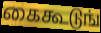
கைகூடுங்